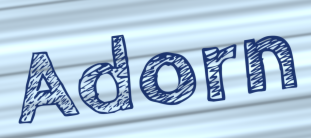
Adorn